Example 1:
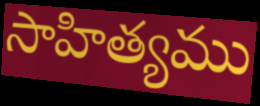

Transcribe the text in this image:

సాహిత్యము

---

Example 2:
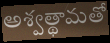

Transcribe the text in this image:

అశ్వత్థామతో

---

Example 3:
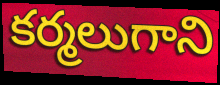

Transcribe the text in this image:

కర్మలుగాని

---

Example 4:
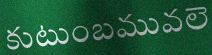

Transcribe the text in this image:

కుటుంబమువలె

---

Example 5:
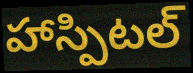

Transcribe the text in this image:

హాస్పిటల్